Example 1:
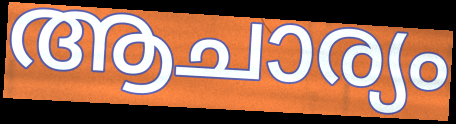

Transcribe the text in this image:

ആചാര്യം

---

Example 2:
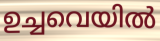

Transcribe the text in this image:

ഉച്ചവെയിൽ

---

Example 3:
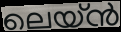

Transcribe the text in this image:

ലെയ്ൻ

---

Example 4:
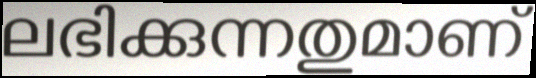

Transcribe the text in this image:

ലഭിക്കുന്നതുമാണ്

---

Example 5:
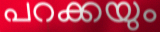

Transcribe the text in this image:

പറക്കയും